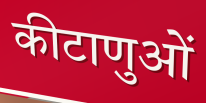
कीटाणुओं